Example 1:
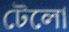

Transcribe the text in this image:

টেলো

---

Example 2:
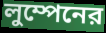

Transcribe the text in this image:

লুম্পেনের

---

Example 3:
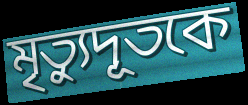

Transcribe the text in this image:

মৃত্যুদূতকে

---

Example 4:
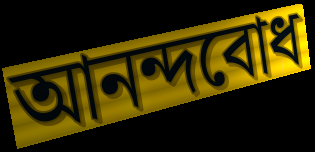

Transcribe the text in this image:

আনন্দবোধ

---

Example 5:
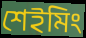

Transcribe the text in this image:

শেইমিং